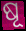
ଷୂ